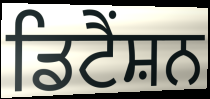
ਡਿਟੈਂਸ਼ਨ